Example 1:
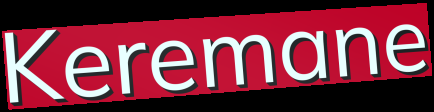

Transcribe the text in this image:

Keremane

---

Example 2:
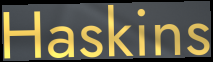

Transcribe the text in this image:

Haskins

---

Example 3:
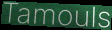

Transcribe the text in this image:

Tamouls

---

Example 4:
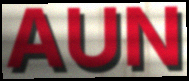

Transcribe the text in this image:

AUN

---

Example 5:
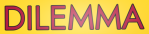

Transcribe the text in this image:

DILEMMA